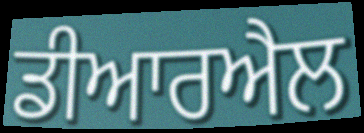
ਡੀਆਰਐਲ